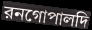
রনগোপালদি